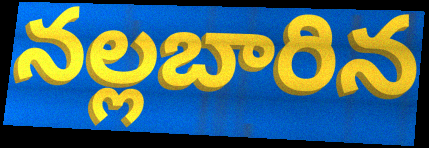
నల్లబారిన